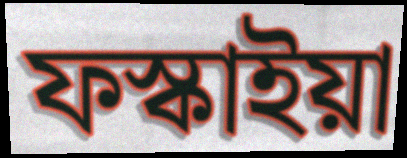
ফস্কাইয়া